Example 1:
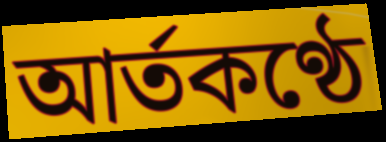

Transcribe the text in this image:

আর্তকণ্ঠে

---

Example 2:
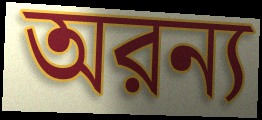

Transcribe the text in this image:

অরন্য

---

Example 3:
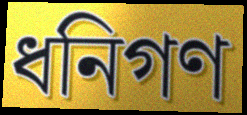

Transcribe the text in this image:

ধনিগণ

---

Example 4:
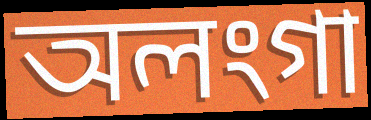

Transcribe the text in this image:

অলংগা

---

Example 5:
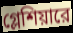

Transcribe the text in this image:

গ্লেশিয়ারে